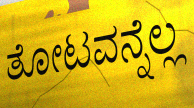
ತೋಟವನ್ನೆಲ್ಲ